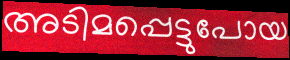
അടിമപ്പെട്ടുപോയ